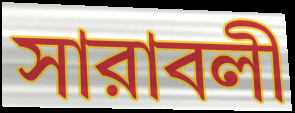
সারাবলী